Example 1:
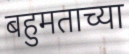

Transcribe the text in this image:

बहुमताच्या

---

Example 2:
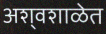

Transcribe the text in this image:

अश्वशाळेत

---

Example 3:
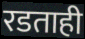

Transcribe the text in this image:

रडताही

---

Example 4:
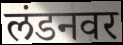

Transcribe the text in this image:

लंडनवर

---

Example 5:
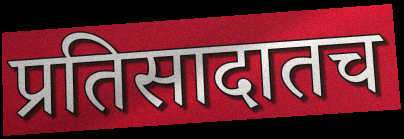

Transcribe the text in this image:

प्रतिसादातच